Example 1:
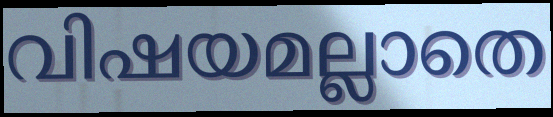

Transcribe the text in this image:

വിഷയമല്ലാതെ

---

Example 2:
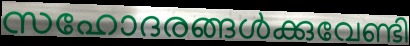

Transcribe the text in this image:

സഹോദരങ്ങൾക്കുവേണ്ടി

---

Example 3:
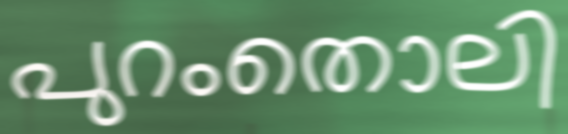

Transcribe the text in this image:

പുറംതൊലി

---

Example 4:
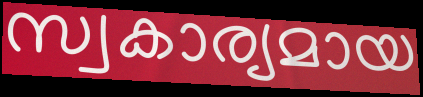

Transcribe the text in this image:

സ്വകാര്യമായ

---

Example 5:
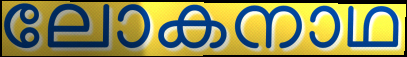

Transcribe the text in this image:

ലോകനാഥ